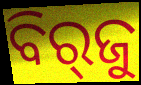
ବିର୍‌ଜୁ